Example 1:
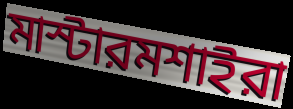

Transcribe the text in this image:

মাস্টারমশাইরা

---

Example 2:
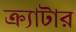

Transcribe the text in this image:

ক্র্যাটার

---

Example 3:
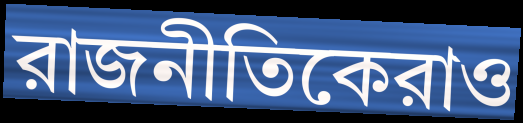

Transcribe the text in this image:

রাজনীতিকেরাও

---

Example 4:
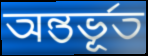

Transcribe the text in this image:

অন্তর্ভূত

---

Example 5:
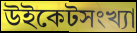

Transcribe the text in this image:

উইকেটসংখ্যা